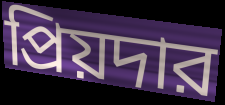
প্রিয়দার